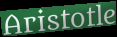
Aristotle